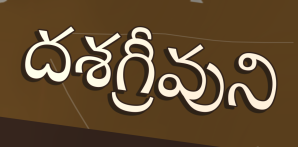
దశగ్రీవుని